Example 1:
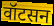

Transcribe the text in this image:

वॉटसन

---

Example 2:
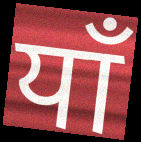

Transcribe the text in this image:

याँ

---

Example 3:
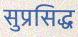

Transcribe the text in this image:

सुप्रसिद्ध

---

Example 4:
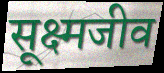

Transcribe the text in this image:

सूक्ष्मजीव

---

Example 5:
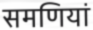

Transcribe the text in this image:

समणियां